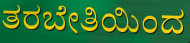
ತರಬೇತಿಯಿಂದ